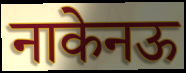
नाकेनऊ